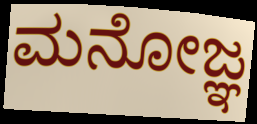
ಮನೋಜ್ಞ